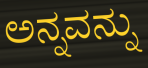
ಅನ್ನವನ್ನು